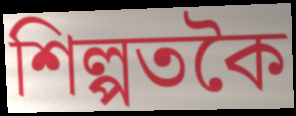
শিল্পতকৈ